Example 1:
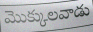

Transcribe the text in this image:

మొక్కులవాడు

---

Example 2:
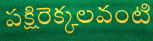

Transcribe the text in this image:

పక్షిరెక్కలవంటి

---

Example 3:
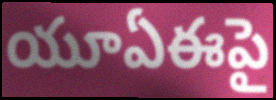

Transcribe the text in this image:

యూఏఈపై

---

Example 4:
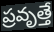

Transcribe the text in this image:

ప్రవృత్తే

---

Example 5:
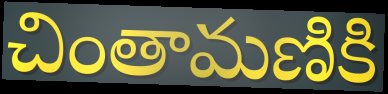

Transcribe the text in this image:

చింతామణికి